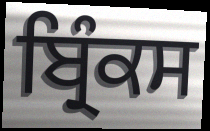
ਬ੍ਰਿੰਕਸ